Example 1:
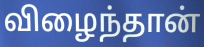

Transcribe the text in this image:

விழைந்தான்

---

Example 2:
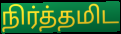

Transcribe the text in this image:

நிர்த்தமிட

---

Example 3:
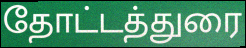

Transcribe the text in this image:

தோட்டத்துரை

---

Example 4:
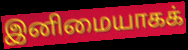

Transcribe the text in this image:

இனிமையாகக்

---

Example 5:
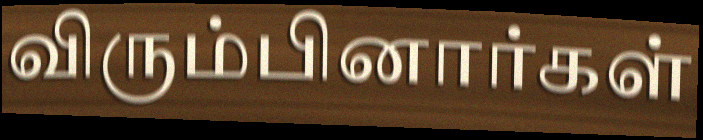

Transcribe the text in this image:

விரும்பினார்கள்